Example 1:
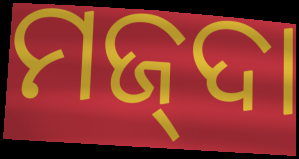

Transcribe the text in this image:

ମଜ୍‌ଦା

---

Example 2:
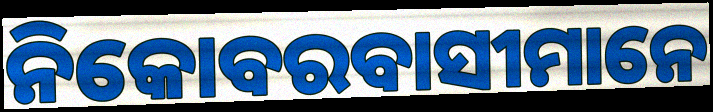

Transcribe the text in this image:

ନିକୋବରବାସୀମାନେ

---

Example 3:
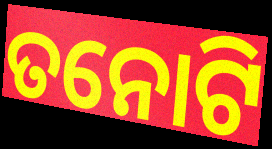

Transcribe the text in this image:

ତନୋଟି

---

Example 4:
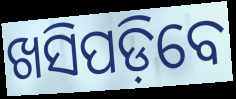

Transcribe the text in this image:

ଖସିପଡ଼ିବେ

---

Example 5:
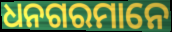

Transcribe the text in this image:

ଧନଗରମାନେ